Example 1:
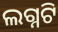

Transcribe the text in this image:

ଲଗ୍ନଟି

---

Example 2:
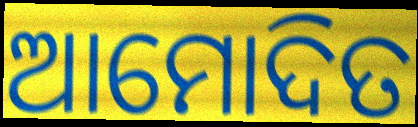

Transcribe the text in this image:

ଆମୋଦିତ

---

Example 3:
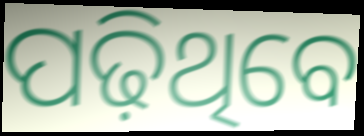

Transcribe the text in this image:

ପଢ଼ିଥିବେ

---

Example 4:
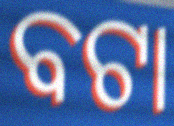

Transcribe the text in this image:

ବଟା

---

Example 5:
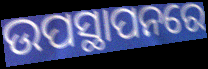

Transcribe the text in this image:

ଉପସ୍ଥାପନରେ